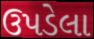
ઉપડેલા